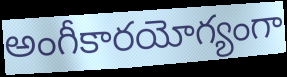
అంగీకారయోగ్యంగా